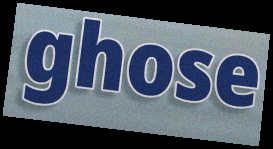
ghose